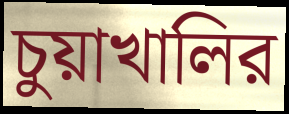
চুয়াখালির